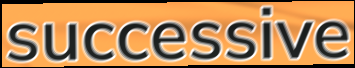
successive